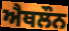
ਐਥਲੌਨ